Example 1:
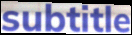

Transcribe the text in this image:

subtitle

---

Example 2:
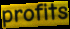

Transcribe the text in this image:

profits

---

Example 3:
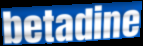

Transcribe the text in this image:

betadine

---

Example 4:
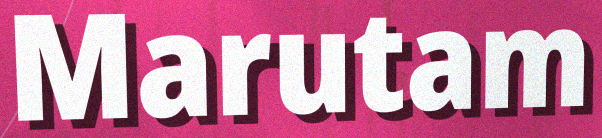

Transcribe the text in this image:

Marutam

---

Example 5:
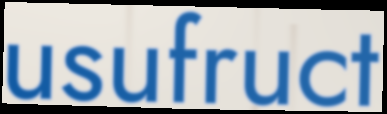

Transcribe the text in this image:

usufruct